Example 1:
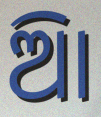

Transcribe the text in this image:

ଆି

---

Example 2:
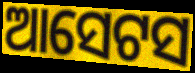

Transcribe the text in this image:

ଆସେଟସ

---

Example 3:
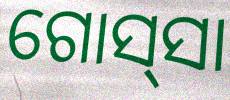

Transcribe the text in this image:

ଗୋସ୍‌ସା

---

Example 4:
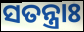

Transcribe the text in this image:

ସତନ୍ତ୍ରାଃ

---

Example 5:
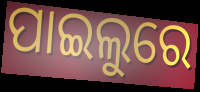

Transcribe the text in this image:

ପାଇଲୁରେ